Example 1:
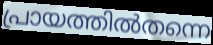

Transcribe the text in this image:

പ്രായത്തിൽതന്നെ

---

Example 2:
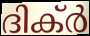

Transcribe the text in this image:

ദിക്ർ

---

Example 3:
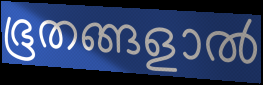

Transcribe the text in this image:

ഭൂതങ്ങളാൽ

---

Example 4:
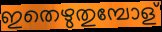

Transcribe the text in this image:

ഇതെഴുതുമ്പോള്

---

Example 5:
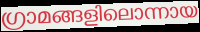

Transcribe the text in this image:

ഗ്രാമങ്ങളിലൊന്നായ